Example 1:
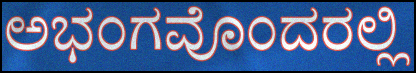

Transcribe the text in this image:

ಅಭಂಗವೊಂದರಲ್ಲಿ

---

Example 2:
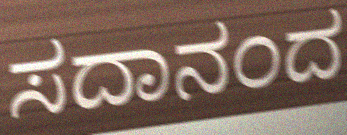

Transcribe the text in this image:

ಸದಾನಂದ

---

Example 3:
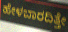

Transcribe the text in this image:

ಹೇಳಬಾರದಿತ್ತೇ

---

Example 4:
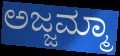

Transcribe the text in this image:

ಅಜ್ಜಮ್ಮಾ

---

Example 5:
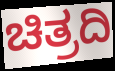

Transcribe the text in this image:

ಚಿತ್ರದಿ